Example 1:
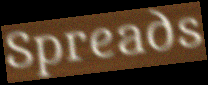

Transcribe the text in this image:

Spreads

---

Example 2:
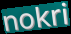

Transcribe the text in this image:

nokri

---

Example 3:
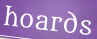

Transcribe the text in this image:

hoards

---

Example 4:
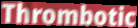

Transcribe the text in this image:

Thrombotic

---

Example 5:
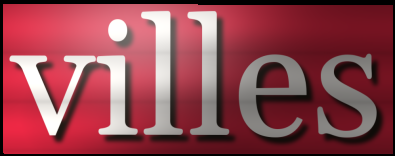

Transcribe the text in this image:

villes